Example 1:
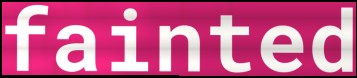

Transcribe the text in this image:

fainted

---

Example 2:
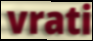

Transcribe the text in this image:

vrati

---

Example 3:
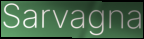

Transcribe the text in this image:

Sarvagna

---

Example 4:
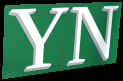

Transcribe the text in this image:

YN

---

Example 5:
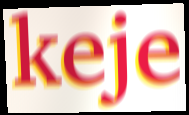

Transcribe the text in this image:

keje